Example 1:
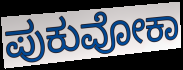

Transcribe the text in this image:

ಪುಕುವೋಕಾ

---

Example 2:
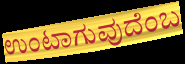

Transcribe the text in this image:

ಉಂಟಾಗುವುದೆಂಬ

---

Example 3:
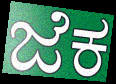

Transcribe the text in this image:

ಜೆಕ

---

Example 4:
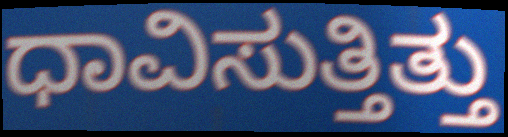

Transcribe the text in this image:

ಧಾವಿಸುತ್ತಿತ್ತು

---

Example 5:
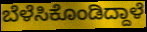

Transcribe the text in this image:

ಬೆಳೆಸಿಕೊಂಡಿದ್ದಾಳೆ